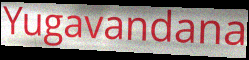
Yugavandana